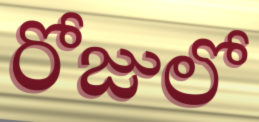
రోజులో